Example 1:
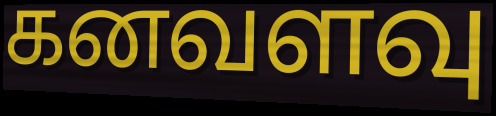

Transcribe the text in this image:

கனவளவு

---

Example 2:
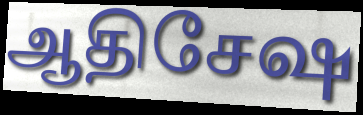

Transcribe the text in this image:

ஆதிசேஷ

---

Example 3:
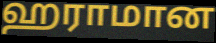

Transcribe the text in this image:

ஹராமான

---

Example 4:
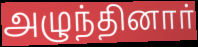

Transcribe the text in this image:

அழுந்தினார்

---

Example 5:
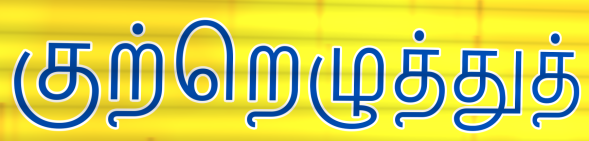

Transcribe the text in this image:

குற்றெழுத்துத்